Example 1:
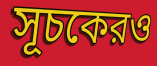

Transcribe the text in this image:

সূচকেরও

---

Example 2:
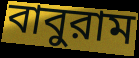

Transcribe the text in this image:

বাবুরাম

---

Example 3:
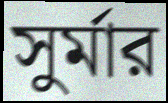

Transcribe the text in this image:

সুর্মার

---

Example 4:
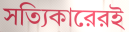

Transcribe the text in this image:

সত্যিকারেরই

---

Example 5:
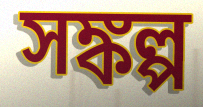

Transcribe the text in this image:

সঙ্কল্প